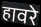
हावरे